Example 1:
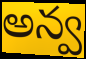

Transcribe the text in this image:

అన్వ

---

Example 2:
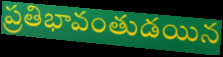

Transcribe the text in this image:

ప్రతిభావంతుడయిన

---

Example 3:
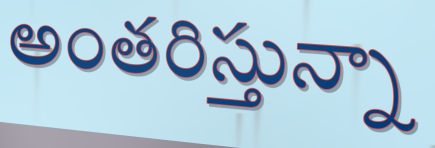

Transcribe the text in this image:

అంతరిస్తున్నా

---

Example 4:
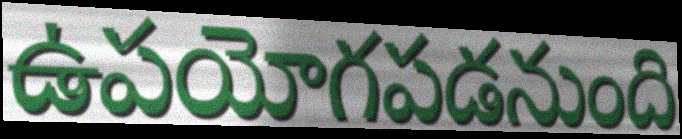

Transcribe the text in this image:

ఉపయోగపడనుంది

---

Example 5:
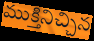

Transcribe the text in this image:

ముక్తినిచ్చిన